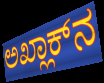
ಅಖ್ಲಾಕ್‍ನ